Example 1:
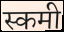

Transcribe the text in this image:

स्कमी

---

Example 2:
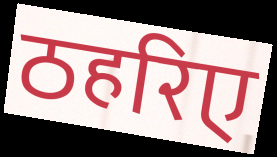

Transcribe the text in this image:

ठहरिए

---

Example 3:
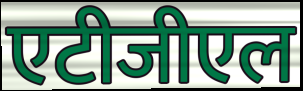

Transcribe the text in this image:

एटीजीएल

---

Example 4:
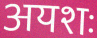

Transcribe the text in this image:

अयशः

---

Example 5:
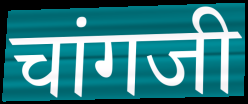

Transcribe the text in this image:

चांगजी